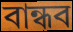
বান্ধব